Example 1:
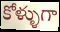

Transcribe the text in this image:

కోళ్ళుగా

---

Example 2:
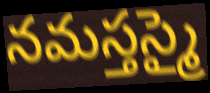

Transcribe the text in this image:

నమస్తస్మై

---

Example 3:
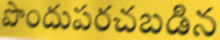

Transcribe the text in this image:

పొందుపరచబడిన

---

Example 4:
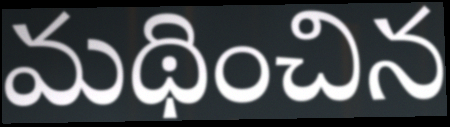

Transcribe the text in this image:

మథించిన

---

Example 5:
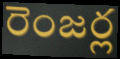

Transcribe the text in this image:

రెంజర్ల